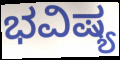
ಭವಿಷ್ಯ